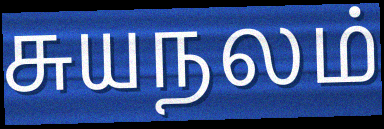
சுயநலம்